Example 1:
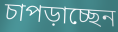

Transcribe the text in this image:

চাপড়াচ্ছেন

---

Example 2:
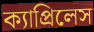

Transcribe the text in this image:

ক্যাপ্রিলেস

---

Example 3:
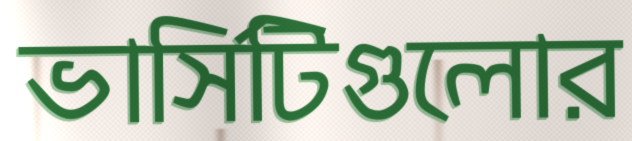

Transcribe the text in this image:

ভার্সিটিগুলোর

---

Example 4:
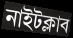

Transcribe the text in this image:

নাইটক্লাব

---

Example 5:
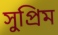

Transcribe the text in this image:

সুপ্রিম